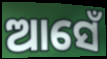
ଆସେଁ